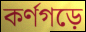
কর্ণগড়ে